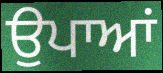
ਉਪਾਆਂ